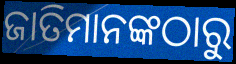
ଜାତିମାନଙ୍କଠାରୁ